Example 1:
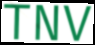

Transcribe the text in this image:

TNV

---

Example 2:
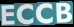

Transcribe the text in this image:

ECCB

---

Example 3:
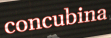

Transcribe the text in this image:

concubina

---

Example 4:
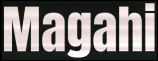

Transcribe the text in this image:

Magahi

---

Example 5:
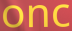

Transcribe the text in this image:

onc